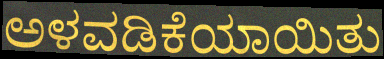
ಅಳವಡಿಕೆಯಾಯಿತು